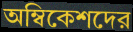
অম্বিকেশদের